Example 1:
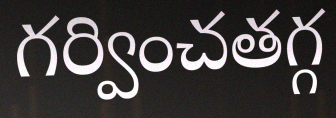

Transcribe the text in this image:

గర్వించతగ్గ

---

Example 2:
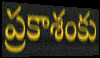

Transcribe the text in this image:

ప్రకాశంకు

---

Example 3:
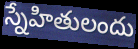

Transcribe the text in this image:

స్నేహితులందు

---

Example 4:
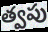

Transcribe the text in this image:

త్వపు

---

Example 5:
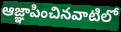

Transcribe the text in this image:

ఆజ్ఞాపించినవాటిలో